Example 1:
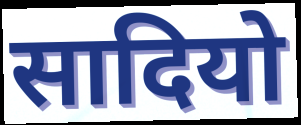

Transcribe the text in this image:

सादियो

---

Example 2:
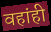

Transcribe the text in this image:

वहांही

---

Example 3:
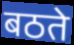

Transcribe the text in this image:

बठते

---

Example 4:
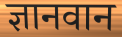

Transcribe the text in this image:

ज्ञानवान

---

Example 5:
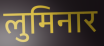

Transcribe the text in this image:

लुमिनार